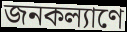
জনকল্যাণে